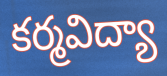
కర్మవిద్యా